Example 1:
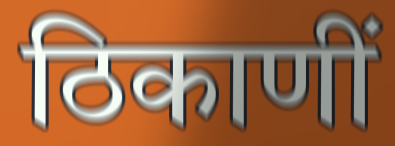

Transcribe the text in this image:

ठिकाणीं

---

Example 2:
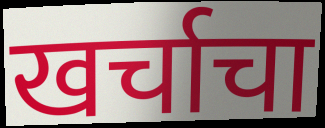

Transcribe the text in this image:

खर्चाचा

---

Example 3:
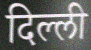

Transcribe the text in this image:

दिल्ली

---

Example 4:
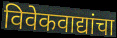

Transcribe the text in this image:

विवेकवाद्यांचा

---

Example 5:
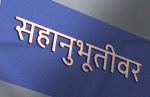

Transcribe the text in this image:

सहानुभूतीवर